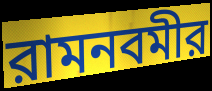
রামনবমীর